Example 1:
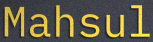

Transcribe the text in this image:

Mahsul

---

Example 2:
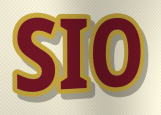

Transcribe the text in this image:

SIO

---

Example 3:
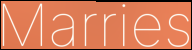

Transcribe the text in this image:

Marries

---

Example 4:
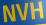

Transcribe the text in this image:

NVH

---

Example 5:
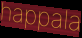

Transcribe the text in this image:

happala